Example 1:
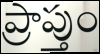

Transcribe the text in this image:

ప్రాప్తుం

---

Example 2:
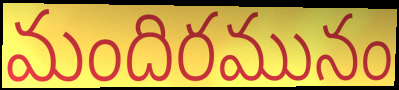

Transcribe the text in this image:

మందిరమునం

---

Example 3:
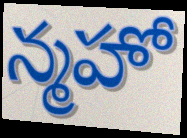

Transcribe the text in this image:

న్మహో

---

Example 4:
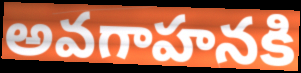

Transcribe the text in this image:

అవగాహనకి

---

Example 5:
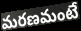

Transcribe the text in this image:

మరణమంటే